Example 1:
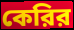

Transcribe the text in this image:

কেরির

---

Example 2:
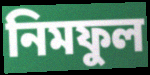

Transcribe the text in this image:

নিমফুল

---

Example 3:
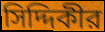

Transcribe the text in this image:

সিদ্দিকীর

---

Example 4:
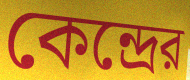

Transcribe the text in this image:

কেন্দ্রের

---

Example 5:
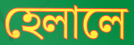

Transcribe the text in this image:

হেলালে